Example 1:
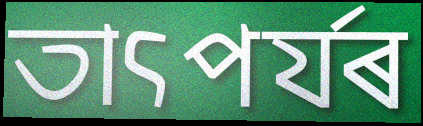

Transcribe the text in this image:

তাৎপৰ্যৰ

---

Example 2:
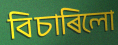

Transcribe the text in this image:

বিচাৰিলো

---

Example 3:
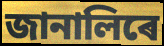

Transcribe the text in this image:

জানালিৰে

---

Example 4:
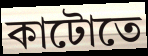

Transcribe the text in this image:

কাটোতে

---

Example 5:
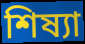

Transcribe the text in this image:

শিষ্যা